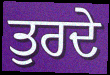
ਤੁਰਦੇ